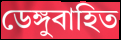
ডেঙ্গুবাহিত